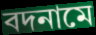
বদনামে